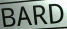
BARD